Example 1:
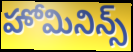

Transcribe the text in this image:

హోమినిన్స్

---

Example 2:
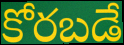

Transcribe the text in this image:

కోరబడే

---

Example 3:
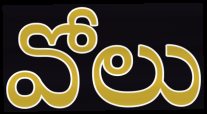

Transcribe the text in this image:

వోలు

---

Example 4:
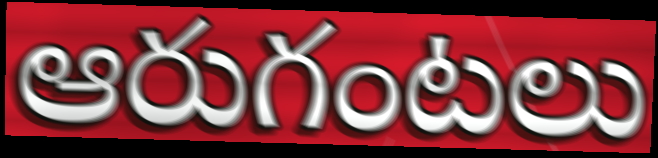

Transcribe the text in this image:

ఆరుగంటలు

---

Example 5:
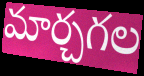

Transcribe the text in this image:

మార్చగల